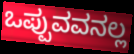
ಒಪ್ಪುವವನಲ್ಲ